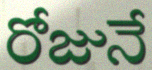
రోజునే